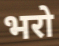
भरो